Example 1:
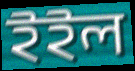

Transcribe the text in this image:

ইইল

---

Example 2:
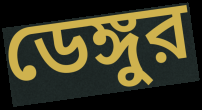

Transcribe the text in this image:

ডেঙ্গুর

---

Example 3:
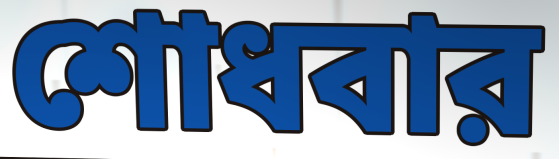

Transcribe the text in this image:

শোধবার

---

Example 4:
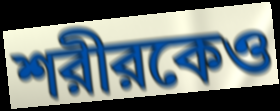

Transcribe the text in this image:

শরীরকেও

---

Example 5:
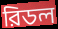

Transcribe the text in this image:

রিডল